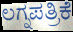
ಲಗ್ನಪತ್ರಿಕೆ